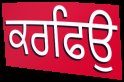
ਕਰਫਿਉ